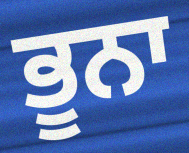
ਭੂਨਾ